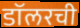
डॉलरची